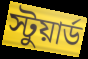
স্টুয়ার্ড